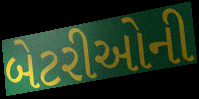
બેટરીઓની